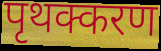
पृथक्करण